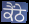
ਕੈਂਠੇ